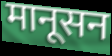
मानूसन